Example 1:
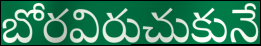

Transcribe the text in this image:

బోరవిరుచుకునే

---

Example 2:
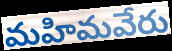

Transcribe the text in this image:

మహిమవేరు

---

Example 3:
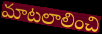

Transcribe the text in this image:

మాటలాలించి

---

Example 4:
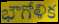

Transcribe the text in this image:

భౌగోళిక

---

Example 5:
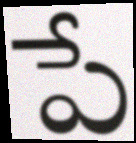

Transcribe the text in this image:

పే